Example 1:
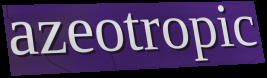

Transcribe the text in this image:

azeotropic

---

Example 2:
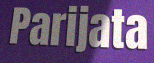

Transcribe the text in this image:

Parijata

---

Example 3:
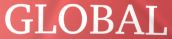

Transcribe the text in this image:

GLOBAL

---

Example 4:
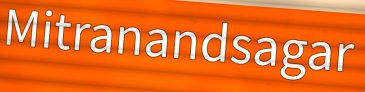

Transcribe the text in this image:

Mitranandsagar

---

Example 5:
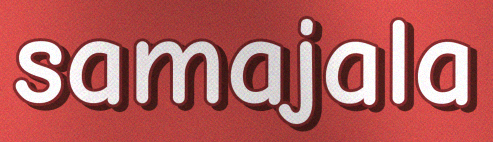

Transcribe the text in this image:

samajala